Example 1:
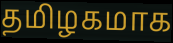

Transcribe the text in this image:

தமிழகமாக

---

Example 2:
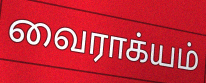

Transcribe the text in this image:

வைராக்யம்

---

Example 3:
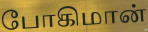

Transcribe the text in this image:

போகிமான்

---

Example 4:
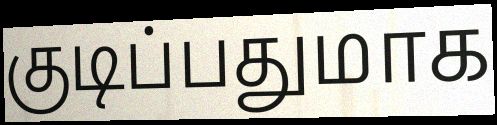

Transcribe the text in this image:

குடிப்பதுமாக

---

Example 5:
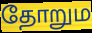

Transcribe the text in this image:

தோறும